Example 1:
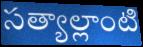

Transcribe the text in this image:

సత్యాల్లాంటి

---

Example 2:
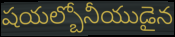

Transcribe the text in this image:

షయల్బోనీయుడైన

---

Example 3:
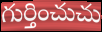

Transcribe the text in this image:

గుర్తించుచు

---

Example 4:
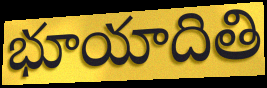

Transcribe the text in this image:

భూయాదితి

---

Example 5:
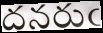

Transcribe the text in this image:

దనరుఁ